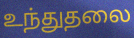
உந்துதலை